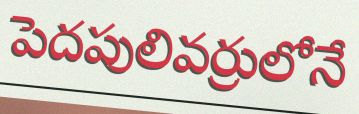
పెదపులివర్రులోనే